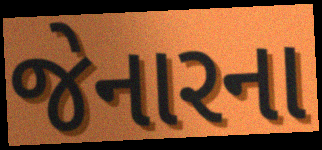
જેનારના